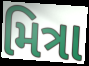
મિત્રા